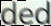
ded